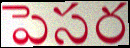
పెసర